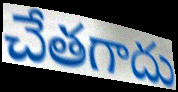
చేతగాదు